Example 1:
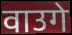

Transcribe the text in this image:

वाउगे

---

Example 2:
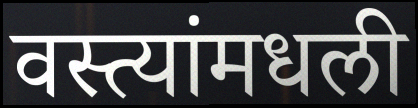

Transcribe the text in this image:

वस्त्यांमधली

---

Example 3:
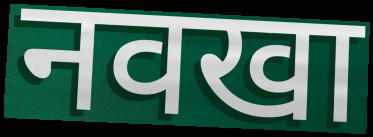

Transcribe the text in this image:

नवखा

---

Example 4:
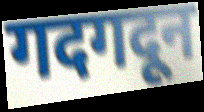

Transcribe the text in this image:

गदगदून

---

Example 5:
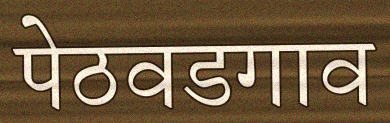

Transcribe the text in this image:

पेठवडगाव